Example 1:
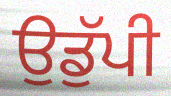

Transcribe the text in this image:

ਉਡੁੱਪੀ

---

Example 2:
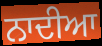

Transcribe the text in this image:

ਨਾਦੀਆ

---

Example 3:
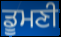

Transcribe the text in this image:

ਡੂਮਣੀ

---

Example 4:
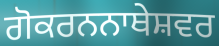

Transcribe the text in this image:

ਗੋਕਰਨਨਾਥੇਸ਼ਵਰ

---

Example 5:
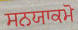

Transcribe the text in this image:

ਸਨਯਾਕਮੋ